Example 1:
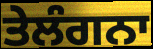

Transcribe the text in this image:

ਤੇਲੰਗਨਾ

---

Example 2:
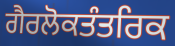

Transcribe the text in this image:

ਗੈਰਲੋਕਤੰਤਰਿਕ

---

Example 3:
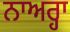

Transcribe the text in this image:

ਨਾਅਰ੍ਹਾ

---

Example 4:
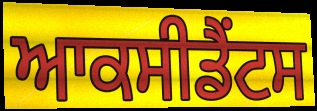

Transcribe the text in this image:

ਆਕਸੀਡੈਂਟਸ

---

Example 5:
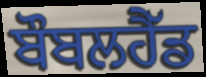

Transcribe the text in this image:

ਬੌਬਲਹੈੱਡ